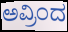
ಅವ್ರಿಂದ